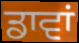
ਡਾਵਾਂ